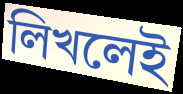
লিখলেই